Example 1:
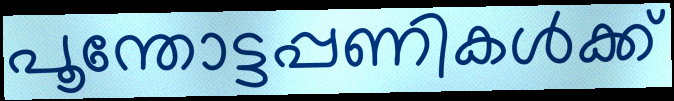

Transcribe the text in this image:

പൂന്തോട്ടപ്പണികൾക്ക്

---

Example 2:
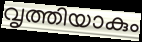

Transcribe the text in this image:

വൃത്തിയാകും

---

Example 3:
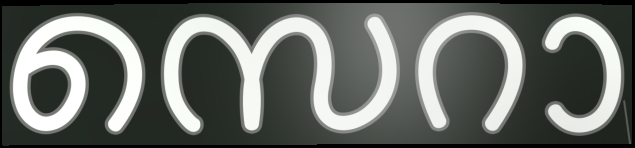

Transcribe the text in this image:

സെറാ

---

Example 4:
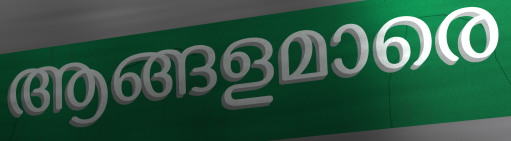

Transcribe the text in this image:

ആങ്ങളമാരെ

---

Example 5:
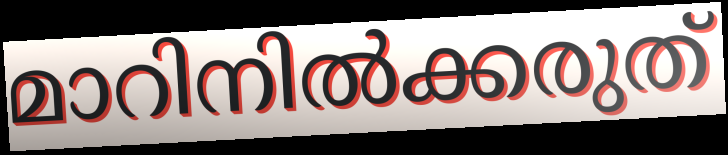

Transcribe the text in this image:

മാറിനിൽക്കരുത്